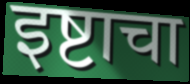
इष्टाचा